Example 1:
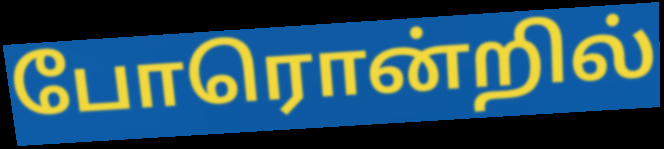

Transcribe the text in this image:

போரொன்றில்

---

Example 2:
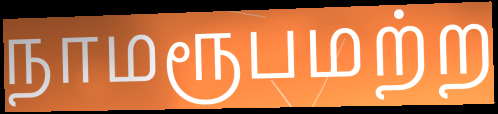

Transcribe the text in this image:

நாமரூபமற்ற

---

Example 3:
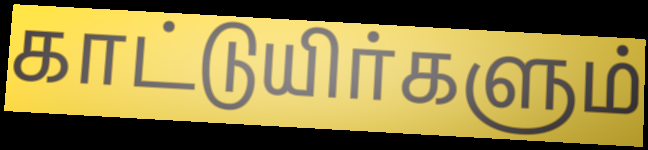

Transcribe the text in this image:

காட்டுயிர்களும்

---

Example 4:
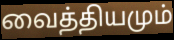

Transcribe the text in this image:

வைத்தியமும்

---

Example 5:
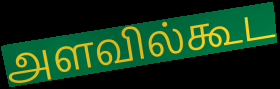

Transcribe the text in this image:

அளவில்கூட